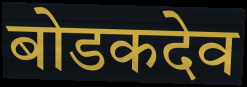
बोडकदेव